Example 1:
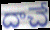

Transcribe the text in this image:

దాచే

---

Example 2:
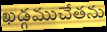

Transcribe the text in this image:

ఖడ్గముచేతను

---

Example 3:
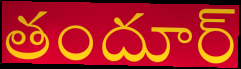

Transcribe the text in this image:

తందూర్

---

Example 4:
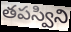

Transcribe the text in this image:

తపస్విని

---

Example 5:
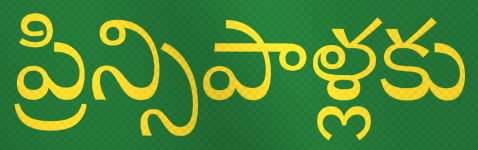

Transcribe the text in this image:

ప్రిన్సిపాళ్లకు